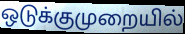
ஒடுக்குமுறையில்